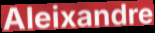
Aleixandre